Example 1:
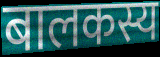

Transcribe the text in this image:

बालकस्य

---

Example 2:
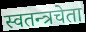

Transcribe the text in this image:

स्वतन्त्रचेता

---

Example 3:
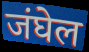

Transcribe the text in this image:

जंघेल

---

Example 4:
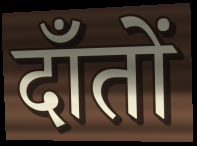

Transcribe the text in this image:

दाँतों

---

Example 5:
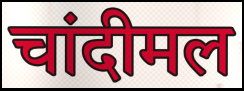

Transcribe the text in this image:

चांदीमल